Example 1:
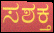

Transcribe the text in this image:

ಸಶಕ್ತ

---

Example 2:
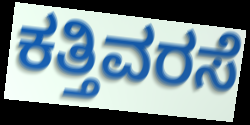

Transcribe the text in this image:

ಕತ್ತಿವರಸೆ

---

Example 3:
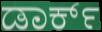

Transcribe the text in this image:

ಡಾರ್ಕ್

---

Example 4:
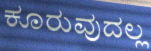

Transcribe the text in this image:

ಕೂರುವುದಲ್ಲ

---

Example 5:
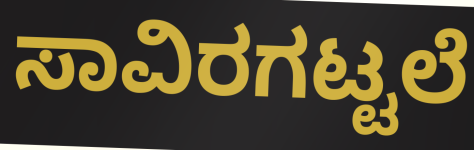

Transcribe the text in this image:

ಸಾವಿರಗಟ್ಟಲೆ